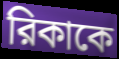
রিকাকে